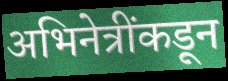
अभिनेत्रींकडून